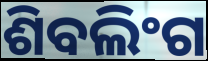
ଶିବଲିଂଗ